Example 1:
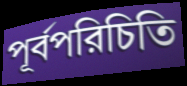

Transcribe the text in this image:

পূর্বপরিচিতি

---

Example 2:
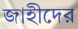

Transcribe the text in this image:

জাহীদের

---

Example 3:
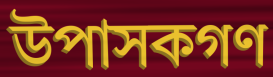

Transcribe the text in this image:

উপাসকগণ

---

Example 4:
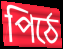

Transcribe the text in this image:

পিঠে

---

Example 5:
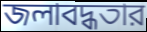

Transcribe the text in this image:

জলাবদ্ধতার